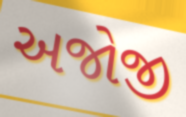
અજોજી